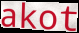
akot